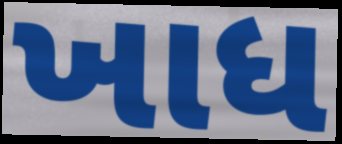
ખાધ